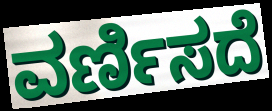
ವರ್ಣಿಸದೆ